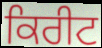
ਕਿਰੀਟ